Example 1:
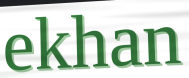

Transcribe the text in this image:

ekhan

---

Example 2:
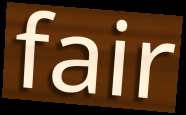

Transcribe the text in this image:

fair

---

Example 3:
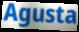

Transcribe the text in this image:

Agusta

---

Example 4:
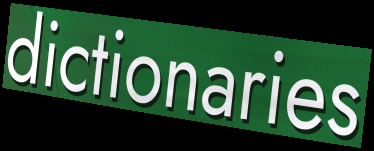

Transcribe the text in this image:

dictionaries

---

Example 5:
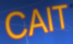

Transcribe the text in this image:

CAIT